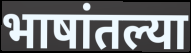
भाषांतल्या